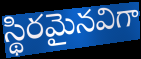
స్థిరమైనవిగా